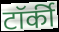
टॉर्की